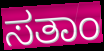
ಸತಾಂ